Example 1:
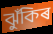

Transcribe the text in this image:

ঝুঁকিৰ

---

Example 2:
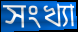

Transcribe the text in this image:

সংখ্যা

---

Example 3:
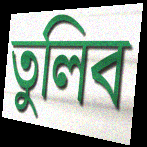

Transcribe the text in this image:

তুলিব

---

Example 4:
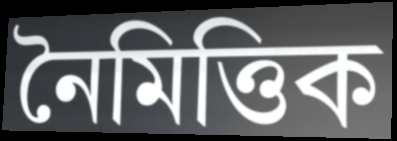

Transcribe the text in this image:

নৈমিত্তিক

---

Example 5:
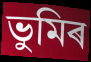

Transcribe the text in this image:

ভুমিৰ